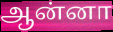
ஆன்னா